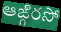
ఆఙ్గిరసో